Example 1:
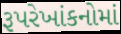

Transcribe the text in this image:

રૂપરેખાંકનોમાં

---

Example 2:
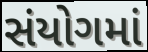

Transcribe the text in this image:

સંયોગમાં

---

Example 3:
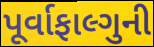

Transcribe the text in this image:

પૂર્વાફાલ્ગુની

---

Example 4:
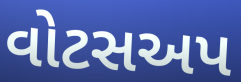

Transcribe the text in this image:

વોટસઅપ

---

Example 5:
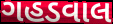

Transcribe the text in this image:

ગહડવાલ